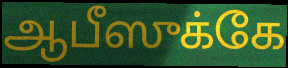
ஆபீஸுக்கே